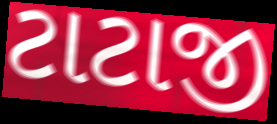
ટાટાજી